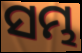
ସମ୍ଭ